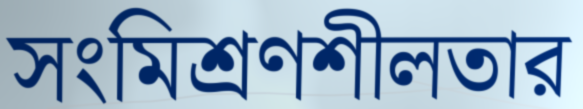
সংমিশ্রণশীলতার